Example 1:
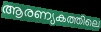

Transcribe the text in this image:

ആരണ്യകത്തിലെ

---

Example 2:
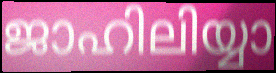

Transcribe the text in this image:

ജാഹിലിയ്യാ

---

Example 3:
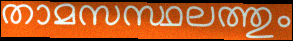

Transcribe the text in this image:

താമസസ്ഥലത്തും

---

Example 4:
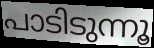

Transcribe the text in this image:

പാടിടുന്നൂ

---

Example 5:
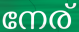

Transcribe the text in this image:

നേര്